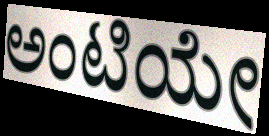
ಅಂಟಿಯೇ